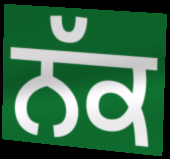
ਨੱਕ